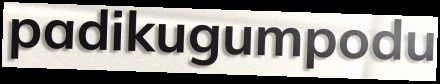
padikugumpodu